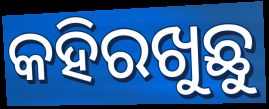
କହିରଖୁଛୁ